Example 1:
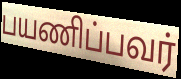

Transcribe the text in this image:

பயணிப்பவர்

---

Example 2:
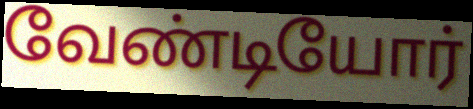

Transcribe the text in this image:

வேண்டியோர்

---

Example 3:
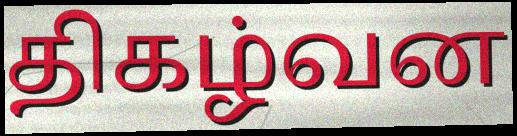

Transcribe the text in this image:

திகழ்வன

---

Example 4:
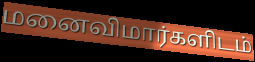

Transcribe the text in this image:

மனைவிமார்களிடம்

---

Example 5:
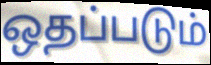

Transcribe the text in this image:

ஒதப்படும்